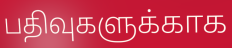
பதிவுகளுக்காக